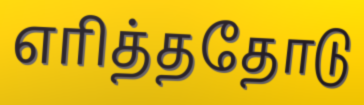
எரித்ததோடு